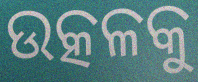
ଉତ୍କଳକୁ